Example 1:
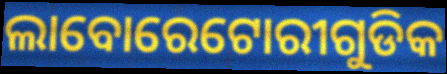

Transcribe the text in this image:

ଲାବୋରେଟୋରୀଗୁଡିକ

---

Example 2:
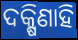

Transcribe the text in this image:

ଦକ୍ଷିଣାହି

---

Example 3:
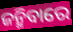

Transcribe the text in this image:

ଜନ୍ମିବାରେ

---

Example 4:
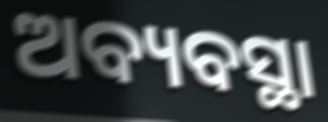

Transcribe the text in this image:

ଅବ୍ୟବସ୍ଥା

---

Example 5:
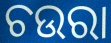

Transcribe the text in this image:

ଚଉରା